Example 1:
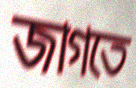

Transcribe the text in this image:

জাগতে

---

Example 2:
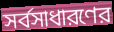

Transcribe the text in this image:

সর্বসাধারণের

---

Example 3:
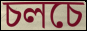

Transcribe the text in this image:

চলচে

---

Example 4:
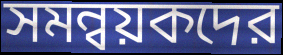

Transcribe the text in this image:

সমন্বয়কদের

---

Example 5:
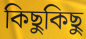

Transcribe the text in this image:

কিছুকিছু